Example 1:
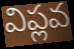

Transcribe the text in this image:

విప్లవ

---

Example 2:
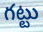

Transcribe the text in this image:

గట్టు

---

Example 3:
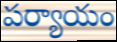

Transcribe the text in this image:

పర్యాయం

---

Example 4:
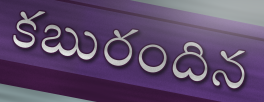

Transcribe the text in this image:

కబురందిన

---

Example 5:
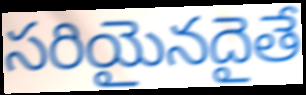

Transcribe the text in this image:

సరియైనదైతే